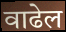
वाढेल